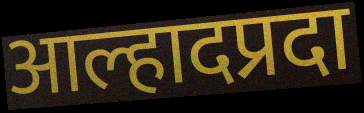
आल्हादप्रदा